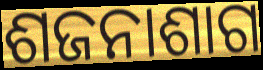
ଶଜନାଶାଗ